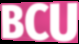
BCU